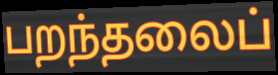
பறந்தலைப்